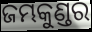
ଜମ୍ଭକୁଣ୍ଡର